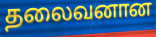
தலைவனான